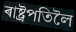
ৰাষ্ট্ৰপতিলৈ